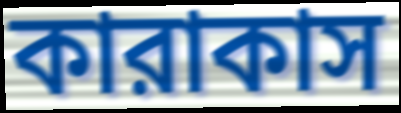
কারাকাস